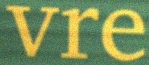
vre